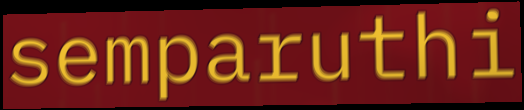
semparuthi